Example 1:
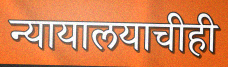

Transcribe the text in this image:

न्यायालयाचीही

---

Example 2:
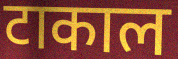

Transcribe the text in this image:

टाकाल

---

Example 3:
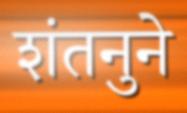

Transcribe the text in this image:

शंतनुने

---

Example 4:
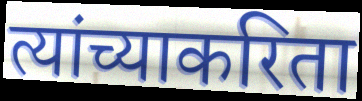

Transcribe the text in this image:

त्यांच्याकरिता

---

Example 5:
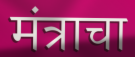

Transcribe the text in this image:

मंत्राचा